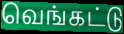
வெங்கட்டு